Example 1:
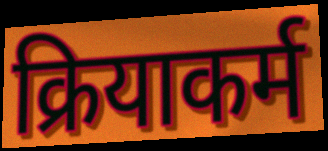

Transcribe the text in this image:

क्रियाकर्म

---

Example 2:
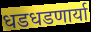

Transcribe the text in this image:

धडधडणार्या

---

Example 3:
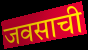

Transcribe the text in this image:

जवसाची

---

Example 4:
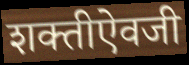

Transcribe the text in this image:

शक्तीऐवजी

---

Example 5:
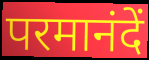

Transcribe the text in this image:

परमानंदें